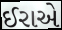
ઈરાએ